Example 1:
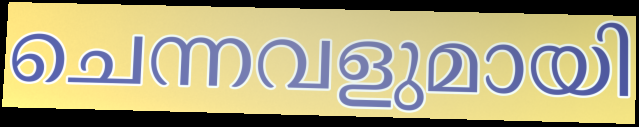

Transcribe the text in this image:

ചെന്നവളുമായി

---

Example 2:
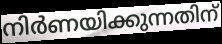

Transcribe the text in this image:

നിർണയിക്കുന്നതിന്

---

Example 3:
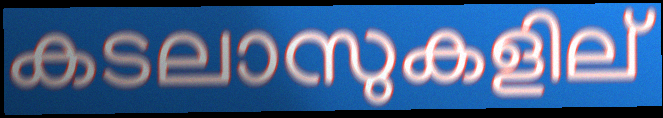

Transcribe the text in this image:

കടലാസുകളില്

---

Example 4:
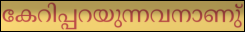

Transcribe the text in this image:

കേറിപ്പറയുന്നവനാണു്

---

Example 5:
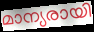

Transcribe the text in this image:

മാന്യരായി